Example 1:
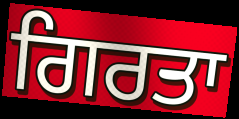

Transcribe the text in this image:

ਗਿਰਤਾ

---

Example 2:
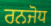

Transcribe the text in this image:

ਰਨਜੋਧ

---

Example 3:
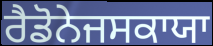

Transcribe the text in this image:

ਰੈਡੋਨੇਜਸਕਾਯਾ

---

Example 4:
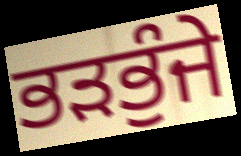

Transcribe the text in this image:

ਭੜਭੁੰਜੇ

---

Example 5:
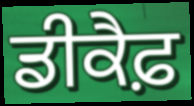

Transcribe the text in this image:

ਡੀਕੈਫ਼